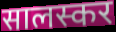
सालस्कर